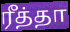
ரீத்தா